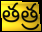
తత్ర